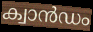
ക്വാൻഡം